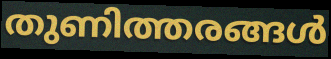
തുണിത്തരങ്ങൾ